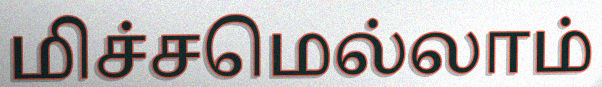
மிச்சமெல்லாம்